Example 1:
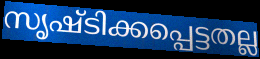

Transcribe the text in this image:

സൃഷ്ടിക്കപ്പെട്ടതല്ല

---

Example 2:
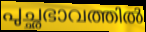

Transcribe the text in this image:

പുച്ഛഭാവത്തിൽ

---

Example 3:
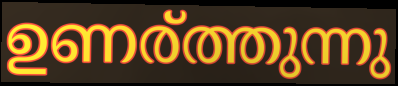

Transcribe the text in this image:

ഉണര്ത്തുന്നു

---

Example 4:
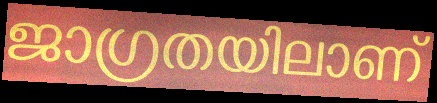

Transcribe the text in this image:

ജാഗ്രതയിലാണ്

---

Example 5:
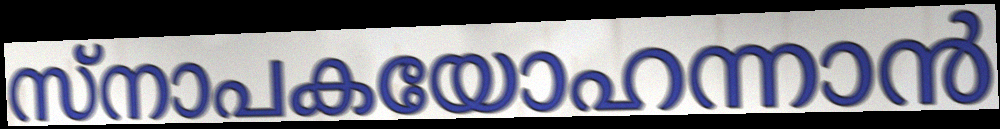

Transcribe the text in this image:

സ്നാപകയോഹന്നാൻ